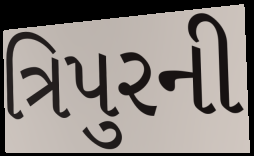
ત્રિપુરની